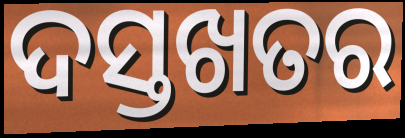
ଦସ୍ତଖତର